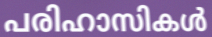
പരിഹാസികൾ